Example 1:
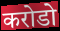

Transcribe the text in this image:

करोडो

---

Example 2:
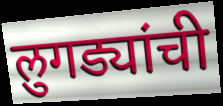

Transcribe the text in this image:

लुगड्यांची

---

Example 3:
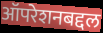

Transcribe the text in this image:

ऑपरेशनबद्दल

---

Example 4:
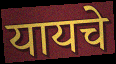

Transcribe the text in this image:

यायचे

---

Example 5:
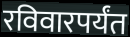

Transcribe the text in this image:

रविवारपर्यंत